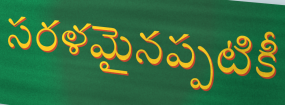
సరళమైనప్పటికీ